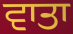
ਵਾਤਾ